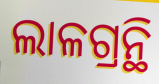
ଲାଳଗ୍ରନ୍ଥି